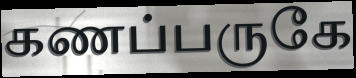
கணப்பருகே